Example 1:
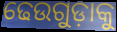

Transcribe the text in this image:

ଢେଉଗୁଡ଼ାକୁ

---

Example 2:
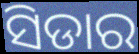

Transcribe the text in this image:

ସିଡାର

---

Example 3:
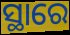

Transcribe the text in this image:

ସ୍ଥାରେ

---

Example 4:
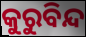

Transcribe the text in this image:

କୁରୁବିନ୍ଦ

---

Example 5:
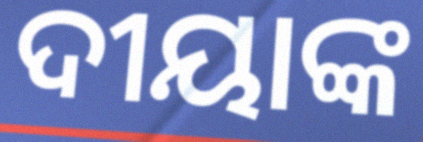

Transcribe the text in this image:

ଦୀୟାଙ୍କ